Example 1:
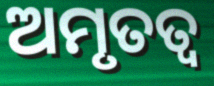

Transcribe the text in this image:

ଅମୃତତ୍ବ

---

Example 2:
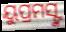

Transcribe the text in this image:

ୟୁପ୍ରମସ୍ଙ୍କ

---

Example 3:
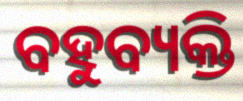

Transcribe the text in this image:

ବହୁବ୍ୟକ୍ତି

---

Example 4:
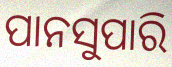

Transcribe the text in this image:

ପାନସୁପାରି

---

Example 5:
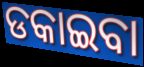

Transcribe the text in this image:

ଡକାଇବା